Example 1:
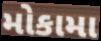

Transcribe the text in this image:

મોકામા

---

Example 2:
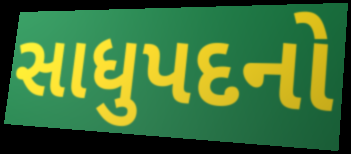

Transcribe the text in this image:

સાધુપદનો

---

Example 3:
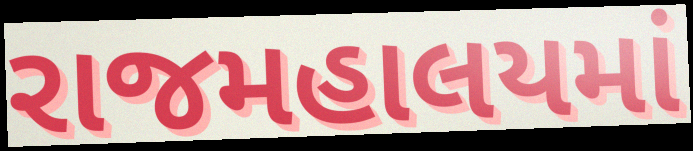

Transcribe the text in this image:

રાજમહાલયમાં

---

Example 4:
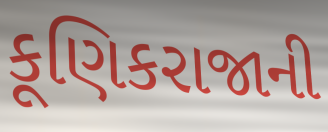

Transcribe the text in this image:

કૂણિકરાજાની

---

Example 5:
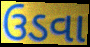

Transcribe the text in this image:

ઉડવા